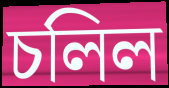
চলিল